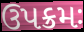
ઉપક્રમઃ